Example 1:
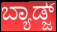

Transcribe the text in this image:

ಬ್ಯಾಡ್ಜ್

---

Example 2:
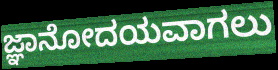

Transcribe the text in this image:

ಜ್ಞಾನೋದಯವಾಗಲು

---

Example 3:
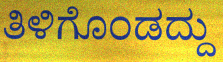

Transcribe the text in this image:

ತಿಳಿಗೊಂಡದ್ದು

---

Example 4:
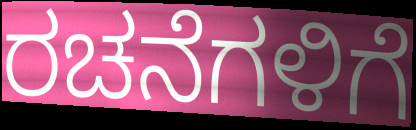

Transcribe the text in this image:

ರಚನೆಗಳಿಗೆ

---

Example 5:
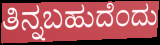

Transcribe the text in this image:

ತಿನ್ನಬಹುದೆಂದು